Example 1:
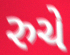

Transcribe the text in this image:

રુચે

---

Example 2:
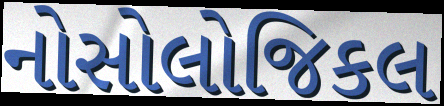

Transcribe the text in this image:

નોસોલોજિકલ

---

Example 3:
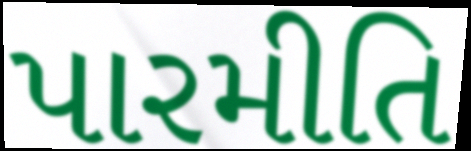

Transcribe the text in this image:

પારમીતિ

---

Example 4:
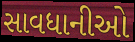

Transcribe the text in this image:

સાવધાનીઓ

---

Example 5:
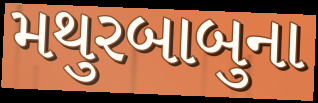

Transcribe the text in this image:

મથુરબાબુના